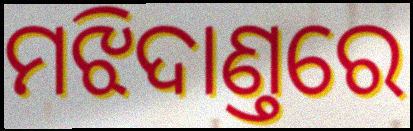
ମଝିଦାଣ୍ତରେ